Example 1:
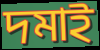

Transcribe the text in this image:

দমাই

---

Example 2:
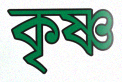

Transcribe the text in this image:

কৃষ্ণ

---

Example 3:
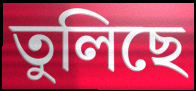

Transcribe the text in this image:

তুলিছে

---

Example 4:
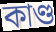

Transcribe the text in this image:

কাণ্ড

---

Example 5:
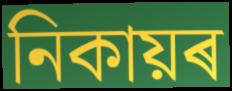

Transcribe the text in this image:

নিকায়ৰ